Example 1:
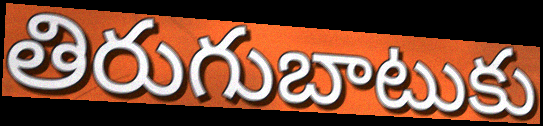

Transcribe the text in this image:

తిరుగుబాటుకు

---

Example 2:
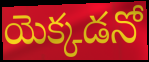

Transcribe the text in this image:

యెక్కడనో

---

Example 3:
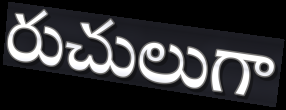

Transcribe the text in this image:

రుచులుగా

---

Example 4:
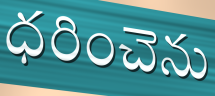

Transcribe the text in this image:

ధరించెను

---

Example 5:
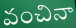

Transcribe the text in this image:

వంచినా